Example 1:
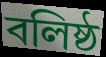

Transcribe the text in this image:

বলিষ্ঠ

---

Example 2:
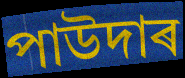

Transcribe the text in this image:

পাউদাৰ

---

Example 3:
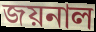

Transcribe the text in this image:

জয়নাল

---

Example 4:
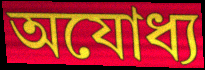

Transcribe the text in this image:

অযোধ্য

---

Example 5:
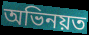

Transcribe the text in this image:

অভিনয়ত